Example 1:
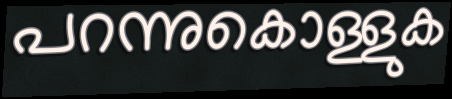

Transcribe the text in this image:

പറന്നുകൊള്ളുക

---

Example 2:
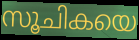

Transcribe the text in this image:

സൂചികയെ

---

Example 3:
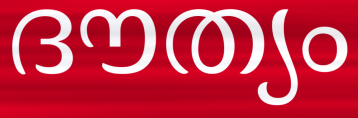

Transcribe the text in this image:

ദൗത്യം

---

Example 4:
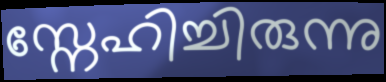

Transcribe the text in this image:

സ്നേഹിച്ചിരുന്നു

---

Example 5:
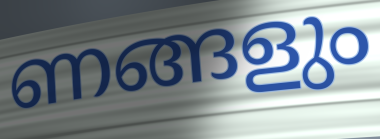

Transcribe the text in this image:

ണങ്ങളും